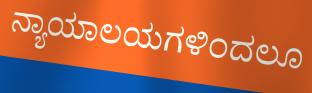
ನ್ಯಾಯಾಲಯಗಳಿಂದಲೂ